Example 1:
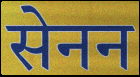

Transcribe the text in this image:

सेनन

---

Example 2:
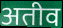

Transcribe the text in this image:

अतीव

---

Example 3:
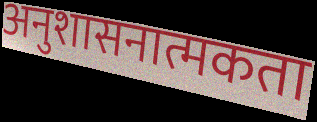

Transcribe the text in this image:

अनुशासनात्मकता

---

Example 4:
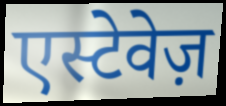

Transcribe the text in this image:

एस्टेवेज़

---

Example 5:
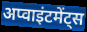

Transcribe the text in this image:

अप्वाइंटमेंट्स